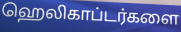
ஹெலிகாப்டர்களை